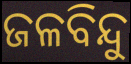
ଜଳବିନ୍ଦୁ